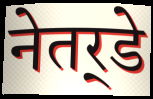
नेतर्डे